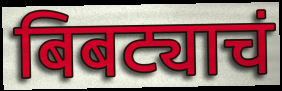
बिबट्याचं